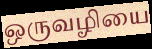
ஒருவழியை